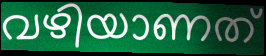
വഴിയാണത്